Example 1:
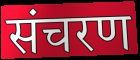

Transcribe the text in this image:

संचरण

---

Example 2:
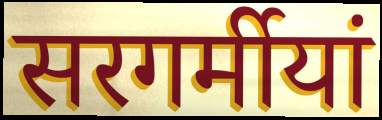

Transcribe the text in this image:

सरगर्मीयां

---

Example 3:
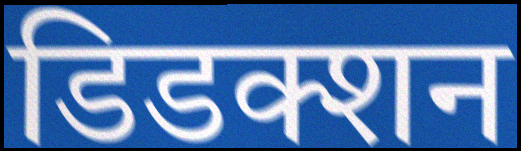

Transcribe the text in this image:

डिडक्शन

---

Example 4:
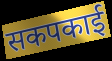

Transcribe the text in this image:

सकपकाई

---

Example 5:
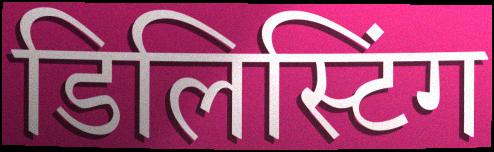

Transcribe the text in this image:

डिलिस्टिंग